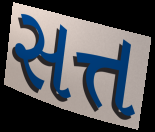
સત્ત